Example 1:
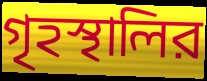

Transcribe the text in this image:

গৃহস্থালির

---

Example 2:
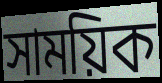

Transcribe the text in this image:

সাময়িক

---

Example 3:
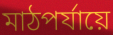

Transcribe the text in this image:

মাঠপর্যায়ে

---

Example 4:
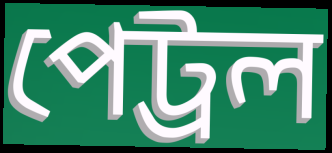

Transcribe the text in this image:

পেট্রল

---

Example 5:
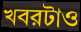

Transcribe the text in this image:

খবরটাও